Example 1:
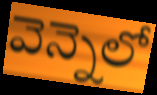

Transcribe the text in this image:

వెన్నెలో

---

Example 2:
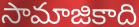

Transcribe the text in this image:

సామాజికాది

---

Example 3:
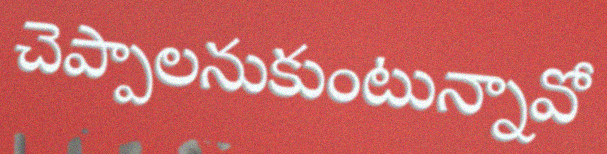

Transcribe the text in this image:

చెప్పాలనుకుంటున్నావో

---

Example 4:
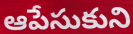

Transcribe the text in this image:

ఆపేసుకుని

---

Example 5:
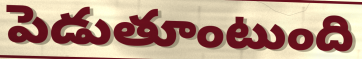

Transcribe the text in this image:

పెడుతూంటుంది